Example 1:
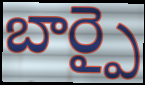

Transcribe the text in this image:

బార్పై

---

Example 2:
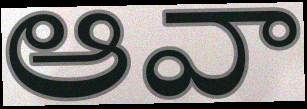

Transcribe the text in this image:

ఆవా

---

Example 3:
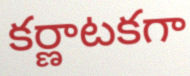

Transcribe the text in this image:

కర్ణాటకగా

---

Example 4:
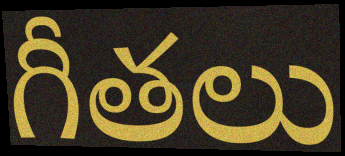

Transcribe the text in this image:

గీతలు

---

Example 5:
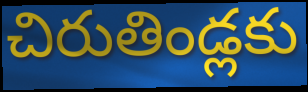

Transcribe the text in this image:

చిరుతిండ్లకు